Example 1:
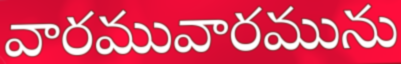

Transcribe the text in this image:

వారమువారమును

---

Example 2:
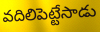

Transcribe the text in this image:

వదిలిపెట్టేసాడు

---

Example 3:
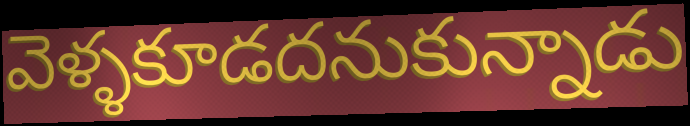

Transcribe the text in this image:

వెళ్ళకూడదనుకున్నాడు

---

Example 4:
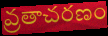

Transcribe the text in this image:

వ్రతాచరణం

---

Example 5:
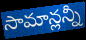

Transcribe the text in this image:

సామాన్లన్నీ